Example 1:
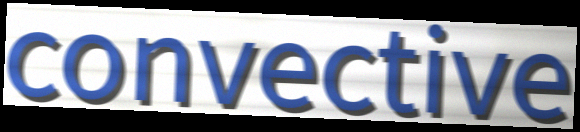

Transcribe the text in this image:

convective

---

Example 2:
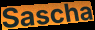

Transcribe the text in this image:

Sascha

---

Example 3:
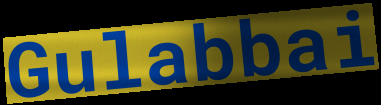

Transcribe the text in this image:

Gulabbai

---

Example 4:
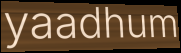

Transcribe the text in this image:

yaadhum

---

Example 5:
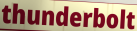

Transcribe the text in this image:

thunderbolt